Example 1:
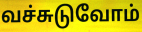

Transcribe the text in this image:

வச்சுடுவோம்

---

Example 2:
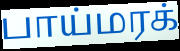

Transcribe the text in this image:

பாய்மரக்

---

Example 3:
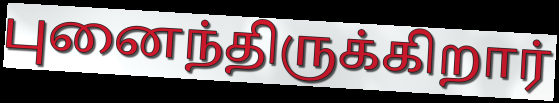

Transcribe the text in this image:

புனைந்திருக்கிறார்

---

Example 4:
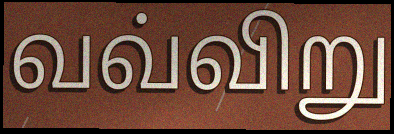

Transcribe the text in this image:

வவ்விறு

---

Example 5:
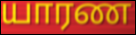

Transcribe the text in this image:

யாரண